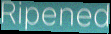
Ripened